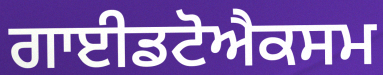
ਗਾਈਡਟੋਐਕਸਮ